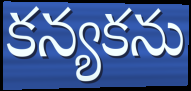
కన్యకను